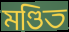
মণ্ডিত